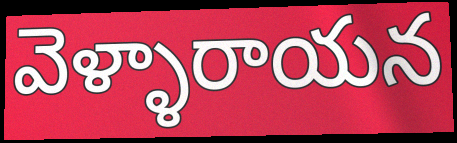
వెళ్ళారాయన